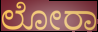
ಲೋರಾ